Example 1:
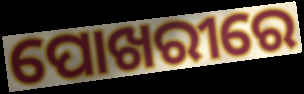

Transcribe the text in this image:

ପୋଖରୀରେ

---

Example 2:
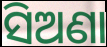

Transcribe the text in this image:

ସିଅଣା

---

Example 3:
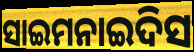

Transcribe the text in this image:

ସାଇମନାଇଦିସ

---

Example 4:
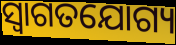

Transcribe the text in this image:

ସ୍ବାଗତଯୋଗ୍ୟ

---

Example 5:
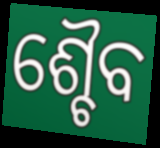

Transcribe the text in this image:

ଶ୍ଚୈବ